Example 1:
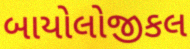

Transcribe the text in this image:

બાયોલોજીકલ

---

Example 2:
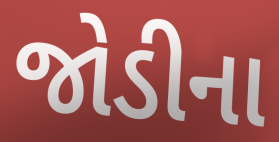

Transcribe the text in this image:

જોડીના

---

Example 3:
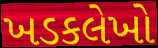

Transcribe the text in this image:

ખડકલેખો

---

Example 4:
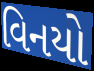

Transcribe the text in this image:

વિનયો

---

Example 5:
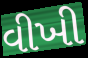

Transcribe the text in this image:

વીખી